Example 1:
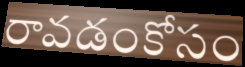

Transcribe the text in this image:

రావడంకోసం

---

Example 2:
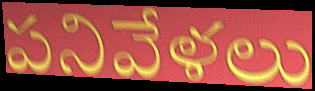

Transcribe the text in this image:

పనివేళలు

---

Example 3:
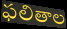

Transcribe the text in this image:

ఫలితాల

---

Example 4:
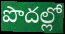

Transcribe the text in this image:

పొదల్లో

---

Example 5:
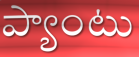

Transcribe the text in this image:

ప్యాంటు